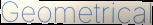
Geometrical